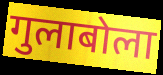
गुलाबोला